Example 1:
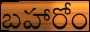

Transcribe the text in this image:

బహారోం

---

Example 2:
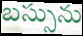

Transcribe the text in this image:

బస్సును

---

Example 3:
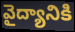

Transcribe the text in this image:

వైద్యానికి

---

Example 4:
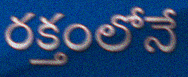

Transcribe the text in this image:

రక్తంలోనే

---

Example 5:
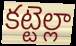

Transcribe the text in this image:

కట్టెల్లా